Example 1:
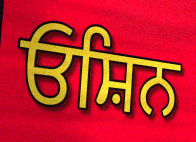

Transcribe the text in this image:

ਓਸ਼ਿਨ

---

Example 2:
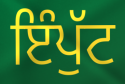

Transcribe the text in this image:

ਇੰਪੁੱਟ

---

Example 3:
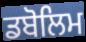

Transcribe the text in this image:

ਡਬੋਲਿਮ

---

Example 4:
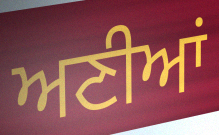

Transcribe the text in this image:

ਅਣੀਆਂ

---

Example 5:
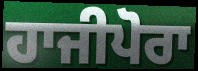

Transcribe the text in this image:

ਹਾਜੀਪੋਰਾ